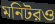
মনিটরও